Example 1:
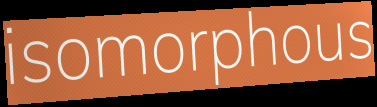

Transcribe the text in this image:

isomorphous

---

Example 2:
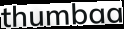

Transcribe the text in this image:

thumbaa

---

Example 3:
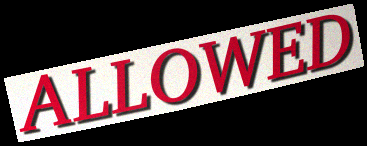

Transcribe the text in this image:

ALLOWED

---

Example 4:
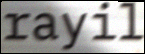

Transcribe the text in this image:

rayil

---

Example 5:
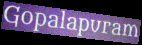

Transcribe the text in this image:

Gopalapuram